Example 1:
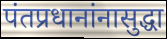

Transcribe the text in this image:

पंतप्रधानांनासुद्धा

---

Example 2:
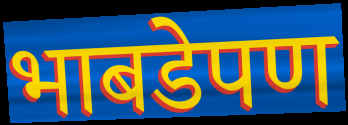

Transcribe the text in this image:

भाबडेपण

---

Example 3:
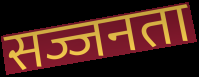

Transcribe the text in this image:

सज्जनता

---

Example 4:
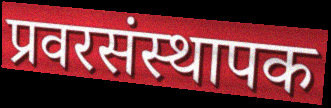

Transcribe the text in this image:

प्रवरसंस्थापक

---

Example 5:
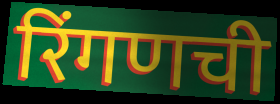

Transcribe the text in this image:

रिंगणची